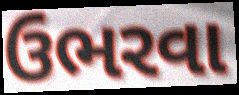
ઉભરવા